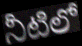
నీటిలో